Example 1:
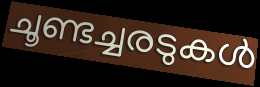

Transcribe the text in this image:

ചൂണ്ടച്ചരടുകൾ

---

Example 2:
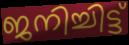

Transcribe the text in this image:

ജനിച്ചിട്ട്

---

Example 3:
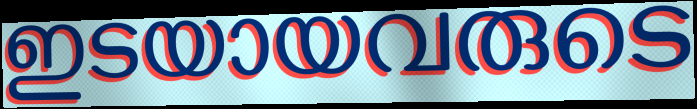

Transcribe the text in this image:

ഇടയായവരുടെ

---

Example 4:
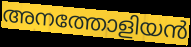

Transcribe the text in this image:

അനത്തോളിയൻ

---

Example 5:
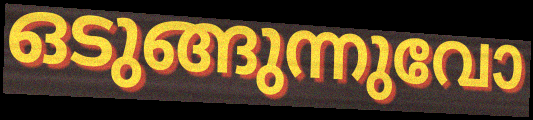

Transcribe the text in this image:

ഒടുങ്ങുന്നുവോ